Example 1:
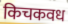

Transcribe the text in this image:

किचकवध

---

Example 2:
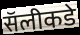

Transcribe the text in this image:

सॅलीकडे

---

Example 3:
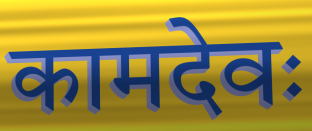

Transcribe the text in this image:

कामदेवः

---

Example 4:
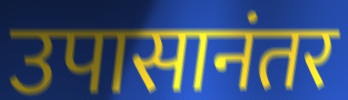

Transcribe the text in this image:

उपासानंतर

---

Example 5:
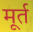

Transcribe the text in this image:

मूर्त